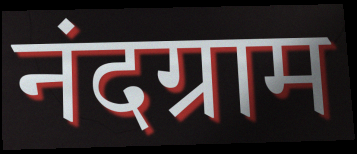
नंदग्राम